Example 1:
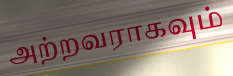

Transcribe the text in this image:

அற்றவராகவும்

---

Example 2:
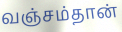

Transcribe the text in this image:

வஞ்சம்தான்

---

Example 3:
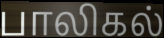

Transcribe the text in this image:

பாலிகல்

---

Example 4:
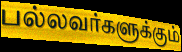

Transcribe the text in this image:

பல்லவர்களுக்கும்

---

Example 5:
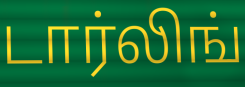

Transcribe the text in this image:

டார்லிங்